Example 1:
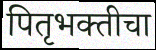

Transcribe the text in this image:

पितृभक्तीचा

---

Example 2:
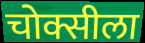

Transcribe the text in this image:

चोक्सीला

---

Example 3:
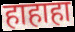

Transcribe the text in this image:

हाहाहा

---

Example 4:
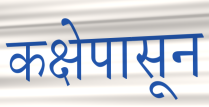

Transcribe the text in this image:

कक्षेपासून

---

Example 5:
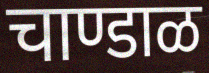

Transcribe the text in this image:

चाण्डाळ